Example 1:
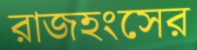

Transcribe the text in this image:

রাজহংসের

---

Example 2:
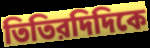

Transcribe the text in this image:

তিতিরদিদিকে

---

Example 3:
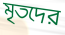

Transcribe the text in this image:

মৃতদের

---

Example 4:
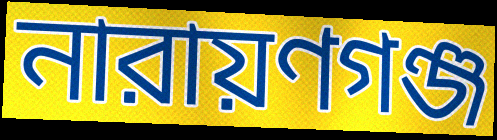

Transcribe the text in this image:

নারায়ণগঞ্জ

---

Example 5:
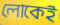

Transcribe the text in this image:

লোকেই